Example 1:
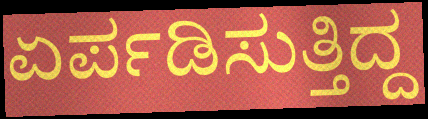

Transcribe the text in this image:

ಏರ್ಪಡಿಸುತ್ತಿದ್ದ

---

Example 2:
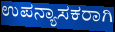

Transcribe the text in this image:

ಉಪನ್ಯಾಸಕರಾಗಿ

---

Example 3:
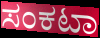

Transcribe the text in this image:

ಸಂಕಟಾ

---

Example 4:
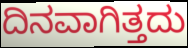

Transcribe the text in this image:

ದಿನವಾಗಿತ್ತದು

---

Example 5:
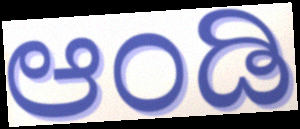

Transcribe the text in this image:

ಆಂಡಿ